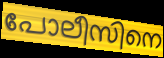
പോലീസിനെ